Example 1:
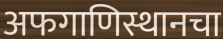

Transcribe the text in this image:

अफगाणिस्थानचा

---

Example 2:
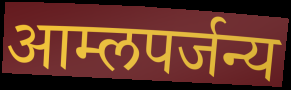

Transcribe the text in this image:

आम्लपर्जन्य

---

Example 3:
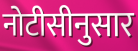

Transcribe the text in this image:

नोटीसीनुसार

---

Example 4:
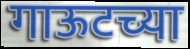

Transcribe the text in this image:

गाऊटच्या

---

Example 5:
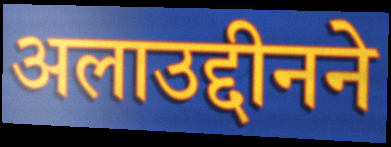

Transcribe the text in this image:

अलाउद्दीनने